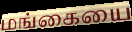
மங்கையை